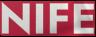
NIFE